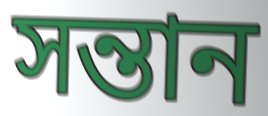
সন্তান